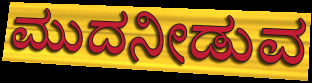
ಮುದನೀಡುವ